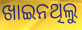
ଖାଇନଥିଲୁ